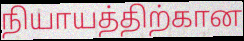
நியாயத்திற்கான